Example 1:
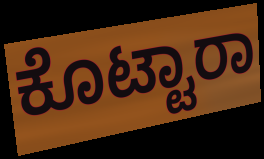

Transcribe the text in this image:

ಕೊಟ್ಟಾರಾ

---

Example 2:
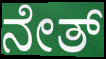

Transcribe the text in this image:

ನೇತ್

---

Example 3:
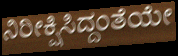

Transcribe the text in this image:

ನಿರೀಕ್ಷಿಸಿದ್ದಂತೆಯೇ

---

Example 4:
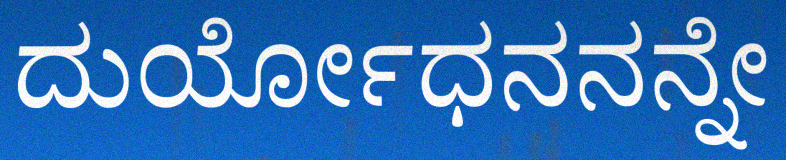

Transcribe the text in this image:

ದುರ್ಯೋಧನನನ್ನೇ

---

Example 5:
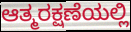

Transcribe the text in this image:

ಆತ್ಮರಕ್ಷಣೆಯಲ್ಲಿ